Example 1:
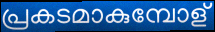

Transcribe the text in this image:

പ്രകടമാകുമ്പോള്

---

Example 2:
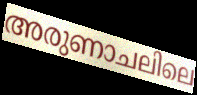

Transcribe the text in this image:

അരുണാചലിലെ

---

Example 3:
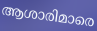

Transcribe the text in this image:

ആശാരിമാരെ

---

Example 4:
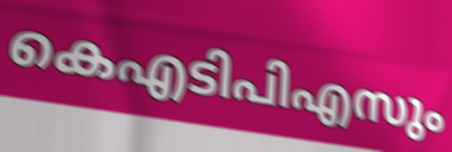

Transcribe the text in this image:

കെഎടിപിഎസും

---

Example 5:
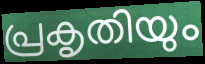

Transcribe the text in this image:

പ്രകൃതിയും